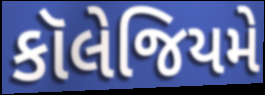
કૉલેજિયમે